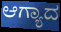
ಆಗ್ಯಾದ